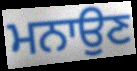
ਮਨਾਉਣ